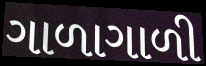
ગાળાગાળી